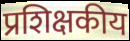
प्रशिक्षकीय